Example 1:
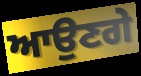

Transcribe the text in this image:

ਆਉਣਗੇ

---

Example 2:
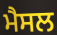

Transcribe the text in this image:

ਮੈਸਲ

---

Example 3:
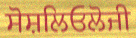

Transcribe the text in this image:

ਸੋਸ਼ਲਿਓਲੋਜੀ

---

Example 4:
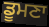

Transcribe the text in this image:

ਡੂਮਣਾ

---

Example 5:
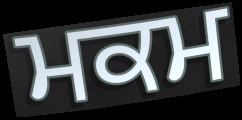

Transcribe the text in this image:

ਮਕਮ